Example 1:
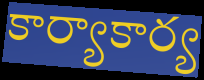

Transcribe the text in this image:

కార్యాకార్య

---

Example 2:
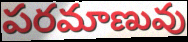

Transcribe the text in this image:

పరమాణువు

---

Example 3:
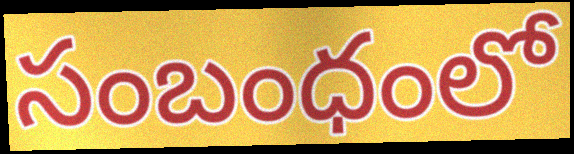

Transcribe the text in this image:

సంబంధంలో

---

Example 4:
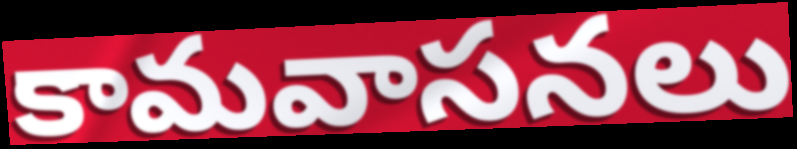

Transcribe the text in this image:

కామవాసనలు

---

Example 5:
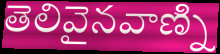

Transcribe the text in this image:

తెలివైనవాణ్ని